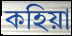
কহিয়া